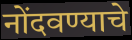
नोंदवण्याचे